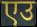
एउ